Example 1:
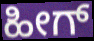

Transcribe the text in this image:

ಹೀಗ್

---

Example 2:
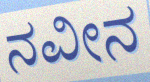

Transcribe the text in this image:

ನವೀನ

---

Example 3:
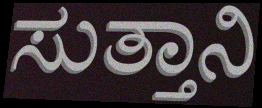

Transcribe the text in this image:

ಸುತ್ತಾನಿ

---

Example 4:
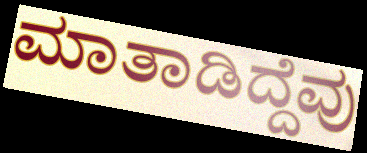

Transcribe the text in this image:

ಮಾತಾಡಿದ್ದೆವು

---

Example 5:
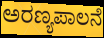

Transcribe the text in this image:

ಅರಣ್ಯಪಾಲನೆ